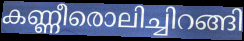
കണ്ണീരൊലിച്ചിറങ്ങി